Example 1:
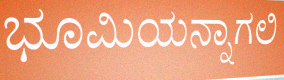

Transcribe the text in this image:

ಭೂಮಿಯನ್ನಾಗಲಿ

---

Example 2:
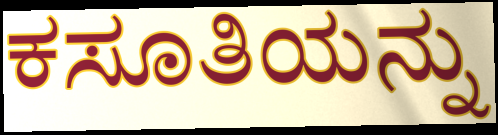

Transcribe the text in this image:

ಕಸೂತಿಯನ್ನು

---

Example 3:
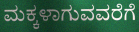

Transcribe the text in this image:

ಮಕ್ಕಳಾಗುವವರೆಗೆ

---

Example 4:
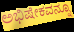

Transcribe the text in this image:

ಅಭಿಷೇಕವನ್ನೂ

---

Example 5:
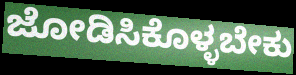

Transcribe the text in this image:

ಜೋಡಿಸಿಕೊಳ್ಳಬೇಕು